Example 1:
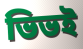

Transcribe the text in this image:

ভিভই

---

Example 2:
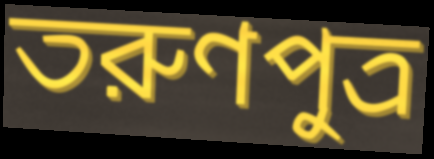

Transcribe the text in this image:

তরুণপুত্র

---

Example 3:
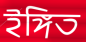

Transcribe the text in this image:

ইঙ্গিত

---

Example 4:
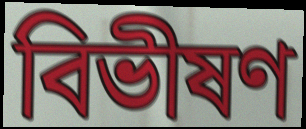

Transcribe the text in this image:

বিভীষণ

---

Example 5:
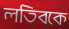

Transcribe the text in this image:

লতিবকে